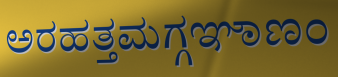
ಅರಹತ್ತಮಗ್ಗಞಾಣಂ